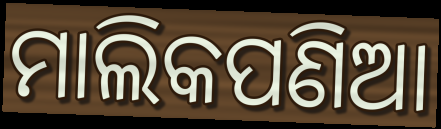
ମାଲିକପଣିଆ